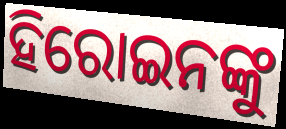
ହିରୋଇନଙ୍କୁ